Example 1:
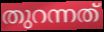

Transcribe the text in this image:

തുറന്നത്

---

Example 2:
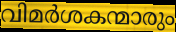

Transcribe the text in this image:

വിമർശകന്മാരും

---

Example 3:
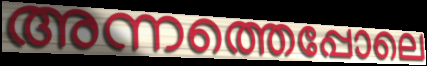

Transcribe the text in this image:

അന്നത്തെപ്പോലെ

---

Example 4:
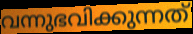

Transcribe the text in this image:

വന്നുഭവിക്കുന്നത്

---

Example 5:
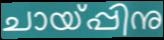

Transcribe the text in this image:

ചായ്പ്പിനു